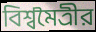
বিশ্বমৈত্রীর